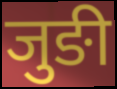
जुङी